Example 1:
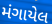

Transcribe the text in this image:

મંગાયેલ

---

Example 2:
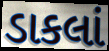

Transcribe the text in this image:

ડાકલાં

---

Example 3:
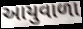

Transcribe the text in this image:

આયુવાળા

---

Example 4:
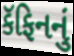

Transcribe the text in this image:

કૅફિનનું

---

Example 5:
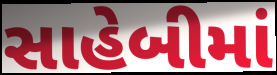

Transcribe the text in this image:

સાહેબીમાં